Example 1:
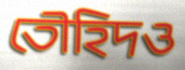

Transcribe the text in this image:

তৌহিদও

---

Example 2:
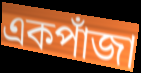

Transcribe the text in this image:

একপাঁজা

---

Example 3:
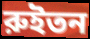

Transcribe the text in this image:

রুইতন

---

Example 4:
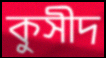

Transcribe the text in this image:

কুসীদ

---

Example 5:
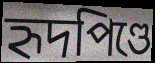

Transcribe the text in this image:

হৃদপিণ্ডে